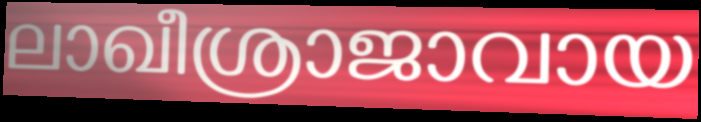
ലാഖീശ്രാജാവായ